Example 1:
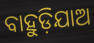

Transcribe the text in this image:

ବାହୁଡ଼ିଯାଅ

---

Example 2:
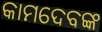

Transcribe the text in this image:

କାମଦେବଙ୍କ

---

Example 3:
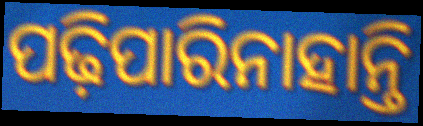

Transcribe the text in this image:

ପଢ଼ିପାରିନାହାନ୍ତି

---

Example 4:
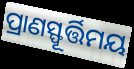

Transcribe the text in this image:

ପ୍ରାଣସ୍ଫୂର୍ତ୍ତିମୟ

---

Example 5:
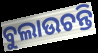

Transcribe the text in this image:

ବୁଲାଉଚନ୍ତି